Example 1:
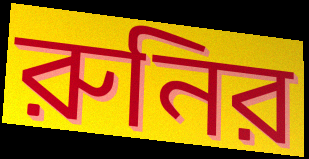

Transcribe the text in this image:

রুনির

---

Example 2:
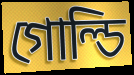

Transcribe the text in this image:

গোল্ডি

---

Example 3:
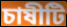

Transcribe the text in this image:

চাষীটি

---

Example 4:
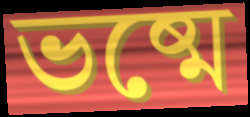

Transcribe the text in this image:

ভষ্মে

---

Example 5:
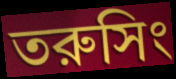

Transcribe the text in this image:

তরুসিং